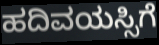
ಹದಿವಯಸ್ಸಿಗೆ